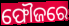
ଫୌଜରେ